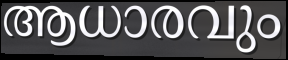
ആധാരവും